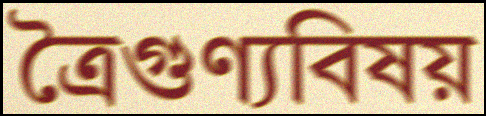
ত্রৈগুণ্যবিষয়